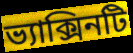
ভ্যাক্সিনটি